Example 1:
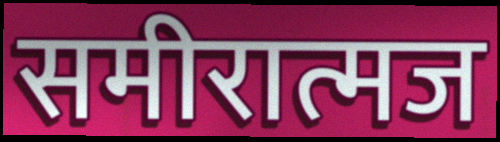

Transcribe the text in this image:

समीरात्मज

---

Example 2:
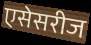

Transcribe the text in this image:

एसेसरीज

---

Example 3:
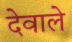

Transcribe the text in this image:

देवाले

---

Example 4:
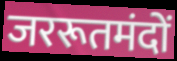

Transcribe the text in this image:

जररूतमंदों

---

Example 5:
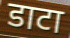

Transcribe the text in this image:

डाटा